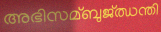
അഭിസമ്ബുജ്ഝന്തി